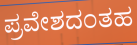
ಪ್ರವೇಶದಂತಹ